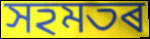
সহমতৰ